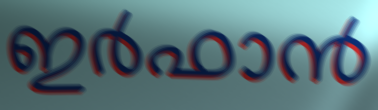
ഇർഫാൻ